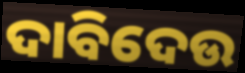
ଦାବିଦେଉ